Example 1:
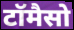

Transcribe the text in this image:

टॉमैसो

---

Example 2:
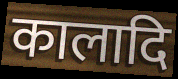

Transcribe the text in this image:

कालादि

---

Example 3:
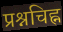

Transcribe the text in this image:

प्रश्नचिह्न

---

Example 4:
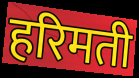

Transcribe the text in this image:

हरिमती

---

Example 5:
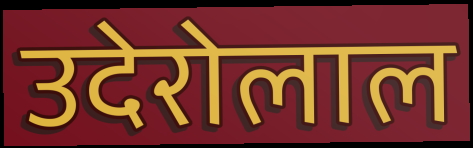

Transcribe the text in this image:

उदेरोलाल